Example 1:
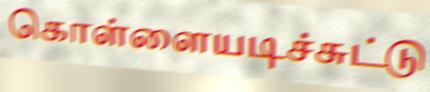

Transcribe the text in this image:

கொள்ளையடிச்சுட்டு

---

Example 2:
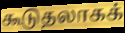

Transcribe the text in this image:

கூடுதலாகக்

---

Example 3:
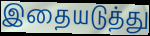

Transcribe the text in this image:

இதையடுத்து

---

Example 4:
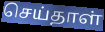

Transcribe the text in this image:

செய்தாள்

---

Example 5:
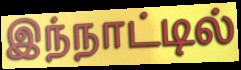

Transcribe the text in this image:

இந்நாட்டில்